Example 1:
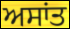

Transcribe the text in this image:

ਅਸਾਂਤ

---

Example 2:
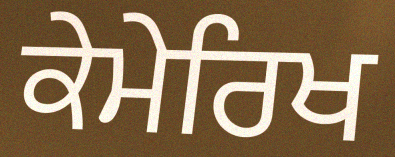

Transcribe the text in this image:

ਕੇਮੇਰਿਖ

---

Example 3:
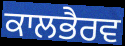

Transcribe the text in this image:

ਕਾਲਭੈਰਵ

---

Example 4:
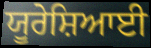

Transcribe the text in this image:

ਯੂਰੇਸ਼ਿਆਈ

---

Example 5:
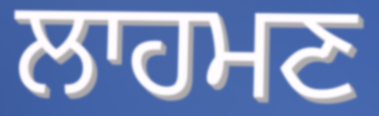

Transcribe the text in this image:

ਲਾਹਮਣ